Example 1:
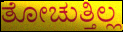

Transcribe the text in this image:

ತೋಚುತ್ತಿಲ್ಲ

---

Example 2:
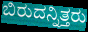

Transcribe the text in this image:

ಬಿರುದನ್ನಿತ್ತರು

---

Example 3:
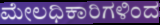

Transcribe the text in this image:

ಮೇಲಧಿಕಾರಿಗಳಿಂದ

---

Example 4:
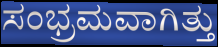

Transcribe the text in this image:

ಸಂಭ್ರಮವಾಗಿತ್ತು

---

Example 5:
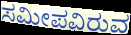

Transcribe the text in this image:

ಸಮೀಪವಿರುವ